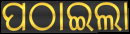
ପଠାଇଲା